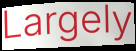
Largely